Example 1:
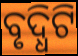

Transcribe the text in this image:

ବୃଦ୍ଧିଟି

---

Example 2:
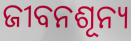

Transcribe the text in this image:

ଜୀବନଶୂନ୍ୟ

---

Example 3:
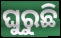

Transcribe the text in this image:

ଘୁରୁଛି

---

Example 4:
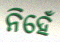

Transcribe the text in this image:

ନିହେଁ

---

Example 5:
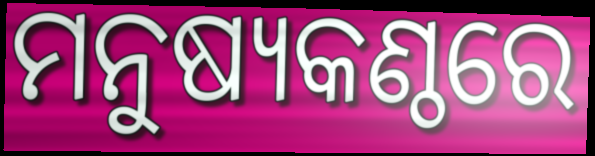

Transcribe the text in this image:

ମନୁଷ୍ୟକଣ୍ଠରେ